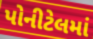
પોનીટેલમાં